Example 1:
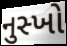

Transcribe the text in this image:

નુસ્ખો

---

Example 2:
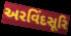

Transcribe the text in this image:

અરવિંદસૂરિ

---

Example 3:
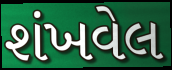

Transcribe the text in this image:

શંખવેલ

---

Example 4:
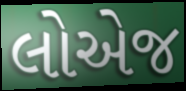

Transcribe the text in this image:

લોએજ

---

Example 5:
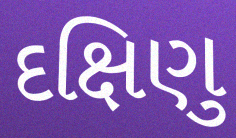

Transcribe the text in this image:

દક્ષિણુ